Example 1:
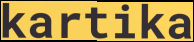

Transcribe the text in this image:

kartika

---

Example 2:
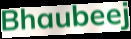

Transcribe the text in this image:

Bhaubeej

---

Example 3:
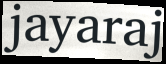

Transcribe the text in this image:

jayaraj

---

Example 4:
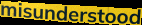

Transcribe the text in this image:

misunderstood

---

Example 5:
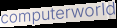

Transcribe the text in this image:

computerworld